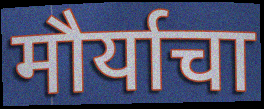
मौर्याचा